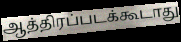
ஆத்திரப்படக்கூடாது